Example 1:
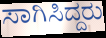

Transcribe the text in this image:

ಸಾಗಿಸಿದ್ದರು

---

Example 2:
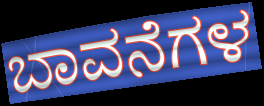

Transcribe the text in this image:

ಬಾವನೆಗಳ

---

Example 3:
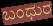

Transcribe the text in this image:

ಬಂಧುರ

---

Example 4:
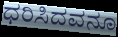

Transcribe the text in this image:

ಧರಿಸಿದವನೂ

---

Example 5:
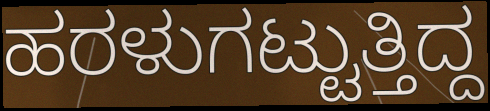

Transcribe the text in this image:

ಹರಳುಗಟ್ಟುತ್ತಿದ್ದ